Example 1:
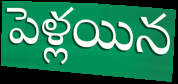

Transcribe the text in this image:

పెళ్లయిన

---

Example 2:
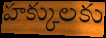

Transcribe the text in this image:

హక్కులకు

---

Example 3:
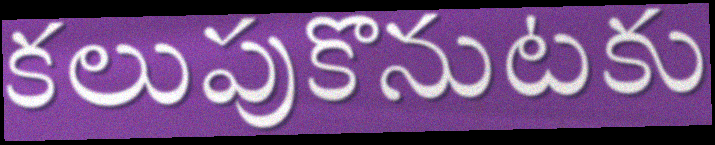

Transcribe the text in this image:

కలుపుకొనుటకు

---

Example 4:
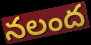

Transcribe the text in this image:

నలంద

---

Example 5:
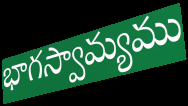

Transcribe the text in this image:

భాగస్వామ్యము